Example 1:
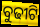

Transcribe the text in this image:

ବୁଢୀଟି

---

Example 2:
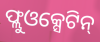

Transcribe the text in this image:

ଫ୍ଲୁଓକ୍ସେଟିନ୍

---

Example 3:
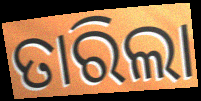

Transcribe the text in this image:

ତାରିଲା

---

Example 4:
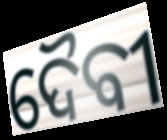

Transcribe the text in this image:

ଦୈବୀ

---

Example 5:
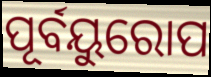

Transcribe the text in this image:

ପୂର୍ବୟୁରୋପ